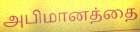
அபிமானத்தை